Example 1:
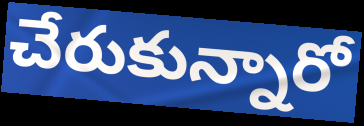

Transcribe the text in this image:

చేరుకున్నారో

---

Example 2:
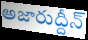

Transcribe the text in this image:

అజారుద్దీన్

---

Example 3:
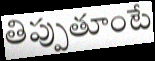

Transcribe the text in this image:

తిప్పుతూంటే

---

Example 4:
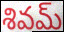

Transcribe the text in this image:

శివమ్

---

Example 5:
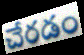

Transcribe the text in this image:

చేరడం